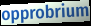
opprobrium